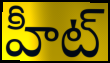
హీట్